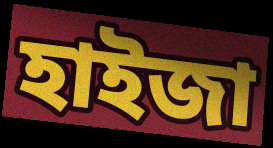
হাইজা